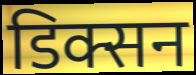
डिक्सन